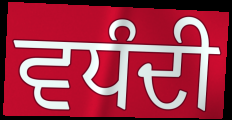
ਵਧੰਦੀ